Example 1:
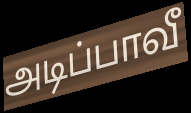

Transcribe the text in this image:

அடிப்பாவீ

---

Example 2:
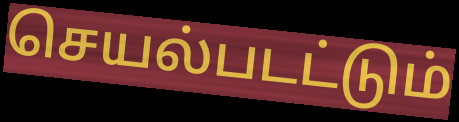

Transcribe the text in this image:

செயல்படட்டும்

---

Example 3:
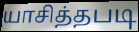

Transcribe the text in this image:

யாசித்தபடி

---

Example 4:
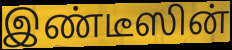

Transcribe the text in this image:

இண்டீஸின்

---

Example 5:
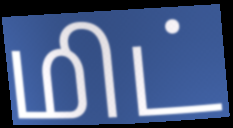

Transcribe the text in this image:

மிட்